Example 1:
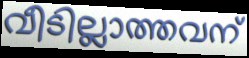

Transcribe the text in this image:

വീടില്ലാത്തവന്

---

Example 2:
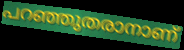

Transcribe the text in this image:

പറഞ്ഞുതരാനാണ്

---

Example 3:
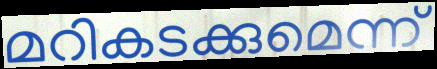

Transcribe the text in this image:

മറികടക്കുമെന്ന്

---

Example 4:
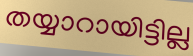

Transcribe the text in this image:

തയ്യാറായിട്ടില്ല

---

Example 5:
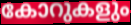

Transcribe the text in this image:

കോറുകളും